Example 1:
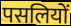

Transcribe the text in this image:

पसलियों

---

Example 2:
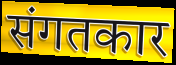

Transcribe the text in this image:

संगतकार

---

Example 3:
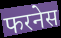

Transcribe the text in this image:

फरनेस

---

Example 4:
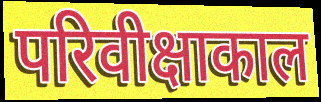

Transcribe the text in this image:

परिवीक्षाकाल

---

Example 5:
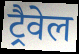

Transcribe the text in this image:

ट्रैवेल